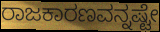
ರಾಜಕಾರಣವನ್ನಷ್ಟೇ